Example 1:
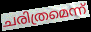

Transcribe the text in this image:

ചരിത്രമെന്ന്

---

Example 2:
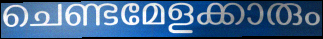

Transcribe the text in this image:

ചെണ്ടമേളക്കാരും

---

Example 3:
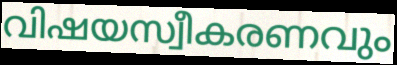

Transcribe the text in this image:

വിഷയസ്വീകരണവും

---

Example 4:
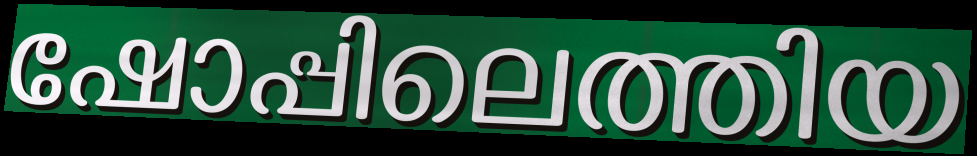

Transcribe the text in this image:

ഷോപ്പിലെത്തിയ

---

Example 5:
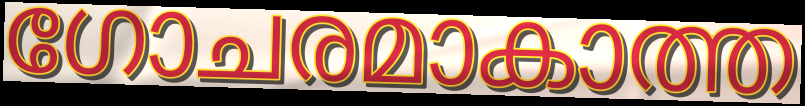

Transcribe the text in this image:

ഗോചരമാകാത്ത